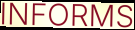
INFORMS